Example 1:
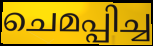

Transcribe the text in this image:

ചെമപ്പിച്ച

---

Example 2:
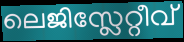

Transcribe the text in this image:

ലെജിസ്ലേറ്റീവ്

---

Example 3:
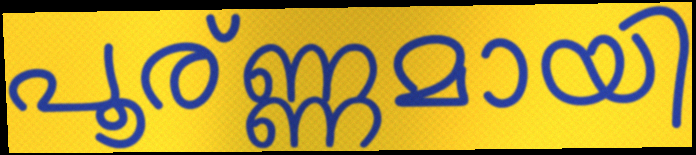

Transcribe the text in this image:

പൂര്ണ്ണമായി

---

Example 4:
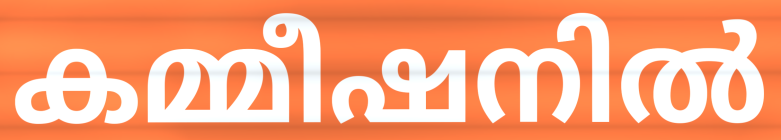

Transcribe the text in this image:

കമ്മീഷനിൽ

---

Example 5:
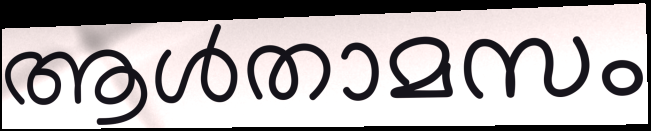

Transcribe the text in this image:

ആൾതാമസം